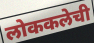
लोककलेची